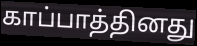
காப்பாத்தினது